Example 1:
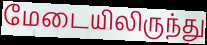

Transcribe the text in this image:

மேடையிலிருந்து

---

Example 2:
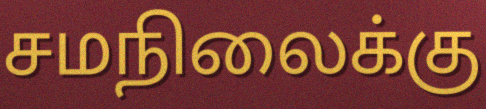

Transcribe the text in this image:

சமநிலைக்கு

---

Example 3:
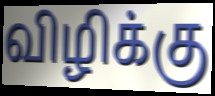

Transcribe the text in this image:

விழிக்கு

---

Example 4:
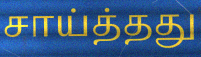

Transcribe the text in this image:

சாய்த்தது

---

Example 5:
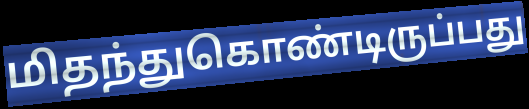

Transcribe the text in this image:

மிதந்துகொண்டிருப்பது